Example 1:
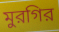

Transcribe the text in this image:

মুরগির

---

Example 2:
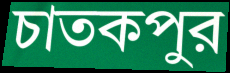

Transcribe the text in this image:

চাতকপুর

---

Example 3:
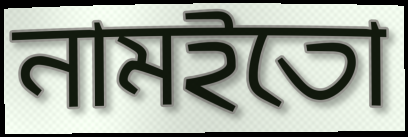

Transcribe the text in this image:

নামইতো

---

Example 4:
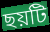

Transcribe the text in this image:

ছয়টি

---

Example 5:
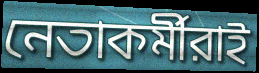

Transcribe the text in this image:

নেতাকর্মীরাই